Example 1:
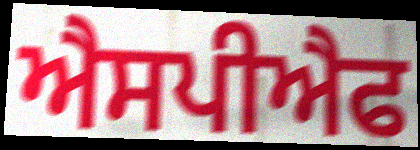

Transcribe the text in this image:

ਐਸਪੀਐਫ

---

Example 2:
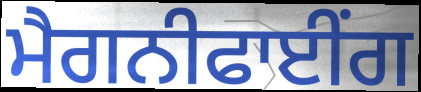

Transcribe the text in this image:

ਮੈਗਨੀਫਾਈਂਗ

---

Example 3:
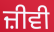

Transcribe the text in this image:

ਜ਼ੀਵੀ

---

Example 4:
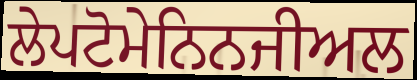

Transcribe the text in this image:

ਲੇਪਟੋਮੇਨਿਨਜੀਅਲ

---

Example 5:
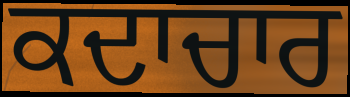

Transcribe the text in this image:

ਕਦਾਚਾਰ